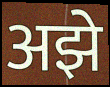
अझे